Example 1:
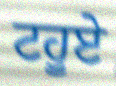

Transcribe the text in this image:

ਟਹੂਏ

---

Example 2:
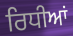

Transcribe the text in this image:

ਰਿਧੀਆਂ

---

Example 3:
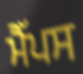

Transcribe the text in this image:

ਮੈੱਪਸ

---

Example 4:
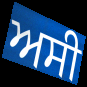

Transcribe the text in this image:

ਅਸੀ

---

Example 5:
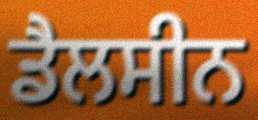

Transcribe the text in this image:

ਡੈਲਸੀਨ